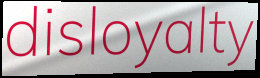
disloyalty